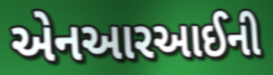
એનઆરઆઈની